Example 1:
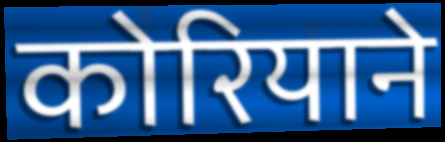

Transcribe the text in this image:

कोरियाने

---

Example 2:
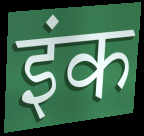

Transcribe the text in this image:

इंक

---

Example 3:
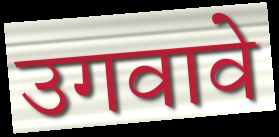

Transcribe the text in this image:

उगवावे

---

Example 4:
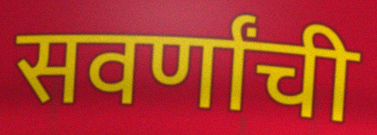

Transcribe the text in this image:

सवर्णांची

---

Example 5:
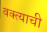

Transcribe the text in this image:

वक्त्याची